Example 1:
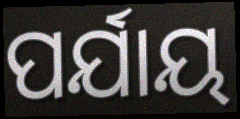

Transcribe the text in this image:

ପର୍ଯାୟ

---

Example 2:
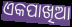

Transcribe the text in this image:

ଏକପାଖିଆ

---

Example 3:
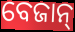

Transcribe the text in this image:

ବେଜାନ୍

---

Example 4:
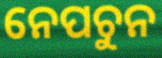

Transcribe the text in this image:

ନେପଚୁନ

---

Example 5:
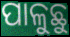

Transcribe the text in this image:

ପାଳୁଛୁ